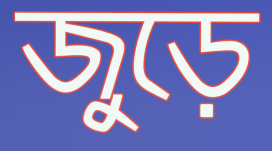
জুড়ে